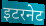
इटरनेट